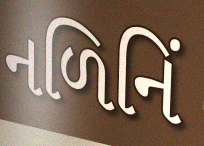
નળિનિં